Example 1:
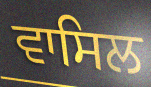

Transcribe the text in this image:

ਵਾਸਿਲ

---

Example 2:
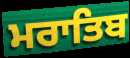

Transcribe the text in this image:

ਮਰਾਤਿਬ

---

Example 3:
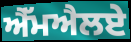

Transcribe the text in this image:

ਐੱਮਐਲਏ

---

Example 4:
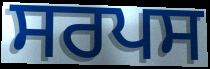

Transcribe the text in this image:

ਸਰਪਸ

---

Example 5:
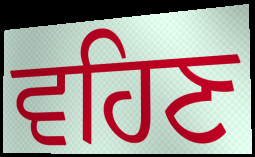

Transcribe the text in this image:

ਵਹਿਣ